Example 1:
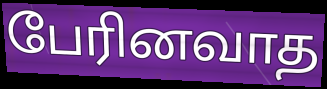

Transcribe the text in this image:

பேரினவாத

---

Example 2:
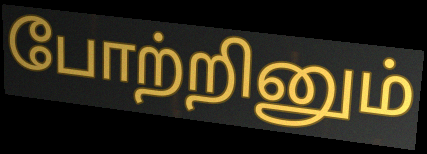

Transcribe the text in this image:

போற்றினும்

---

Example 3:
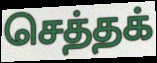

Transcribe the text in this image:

செத்தக்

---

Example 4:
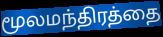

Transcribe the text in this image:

மூலமந்திரத்தை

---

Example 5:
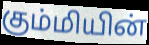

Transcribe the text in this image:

கும்மியின்